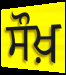
ਸੌਖ਼